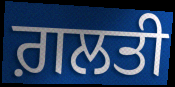
ਗ਼ਲਤੀ